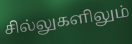
சில்லுகளிலும்